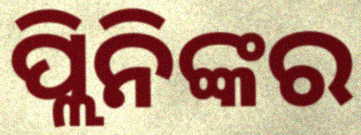
ପ୍ଲିନିଙ୍କର